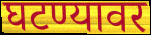
घटण्यावर